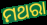
ମଥରା